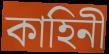
কাহিনী